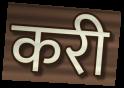
करी